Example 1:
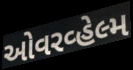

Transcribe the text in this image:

ઓવરવ્હેલ્મ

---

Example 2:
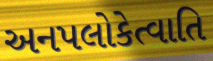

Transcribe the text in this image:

અનપલોકેત્વાતિ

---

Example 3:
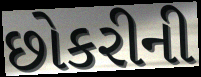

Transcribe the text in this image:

છોકરીની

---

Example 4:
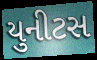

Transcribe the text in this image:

યુનીટસ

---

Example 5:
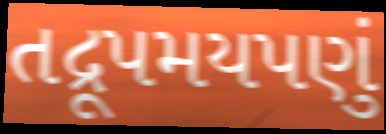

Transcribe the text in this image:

તદ્રૂપમયપણું